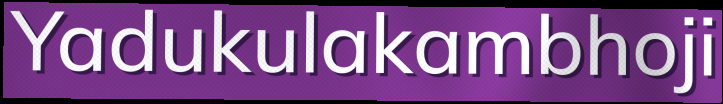
Yadukulakambhoji